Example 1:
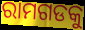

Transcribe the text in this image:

ରାମଗଡକୁ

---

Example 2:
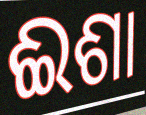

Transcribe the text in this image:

ଈଶା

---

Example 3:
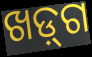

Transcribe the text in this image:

ଖଡ଼୍‌ଗ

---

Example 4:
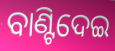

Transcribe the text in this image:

ବାଣ୍ଟିଦେଇ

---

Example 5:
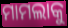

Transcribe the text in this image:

ମାମଲାକୁ